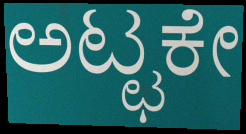
ಅಟ್ಟಕೇ